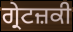
ਗ੍ਰੇਟਜ਼ਕੀ